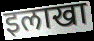
इलाखा